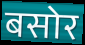
बसोर